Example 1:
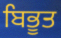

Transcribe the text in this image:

ਬਿਭੂਤ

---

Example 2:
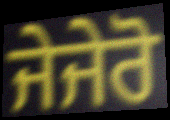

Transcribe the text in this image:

ਜੇਜੇਰੋ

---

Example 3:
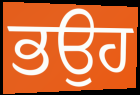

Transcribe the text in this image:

ਭਉਹ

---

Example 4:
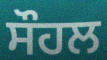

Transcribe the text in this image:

ਸੌਹਲ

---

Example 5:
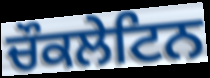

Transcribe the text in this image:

ਚੌਕਲੇਟਿਨ